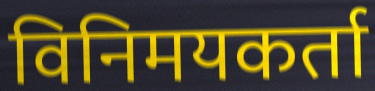
विनिमयकर्ता